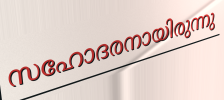
സഹോദരനായിരുന്നു